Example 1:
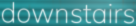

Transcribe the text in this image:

downstairs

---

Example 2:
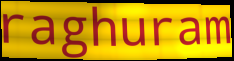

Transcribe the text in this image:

raghuram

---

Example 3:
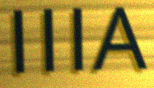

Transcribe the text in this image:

IIIA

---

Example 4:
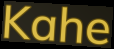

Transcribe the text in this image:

Kahe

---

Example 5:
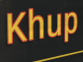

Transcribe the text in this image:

Khup